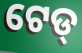
ଟେଡ୍